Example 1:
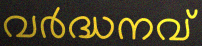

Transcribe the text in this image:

വർദ്ധനവ്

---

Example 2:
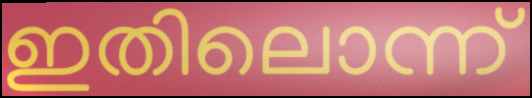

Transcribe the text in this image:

ഇതിലൊന്ന്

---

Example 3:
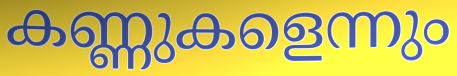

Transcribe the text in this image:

കണ്ണുകളെന്നും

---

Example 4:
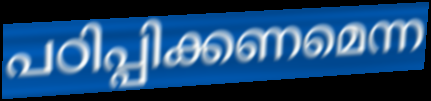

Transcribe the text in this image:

പഠിപ്പിക്കണമെന്ന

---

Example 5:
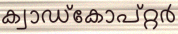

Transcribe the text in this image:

ക്വാഡ്കോപ്റ്റർ